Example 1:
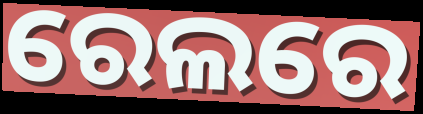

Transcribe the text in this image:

ରେଲରେ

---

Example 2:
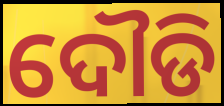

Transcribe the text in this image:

ଦୌଡି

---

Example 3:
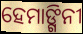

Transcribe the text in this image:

ହେମାଙ୍ଗିନୀ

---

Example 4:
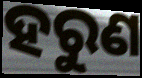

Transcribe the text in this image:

ହରୁଣ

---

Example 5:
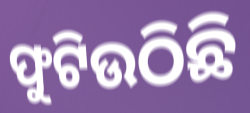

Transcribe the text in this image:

ଫୁଟିଉଠିଛି